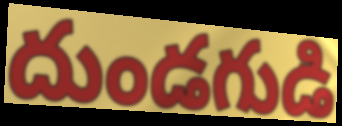
దుండగుడి